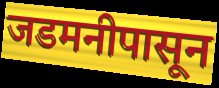
जडमनीपासून